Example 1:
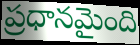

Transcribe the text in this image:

ప్రధానమైంది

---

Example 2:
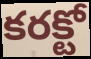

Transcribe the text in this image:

కరక్టో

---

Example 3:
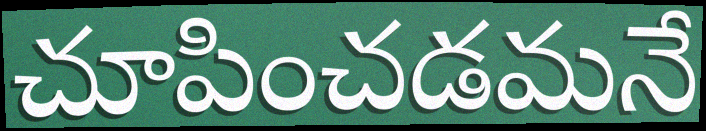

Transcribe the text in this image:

చూపించడమనే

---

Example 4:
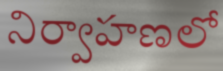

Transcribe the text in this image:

నిర్వాహణలో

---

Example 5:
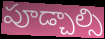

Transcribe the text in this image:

పూడ్చాల్సి